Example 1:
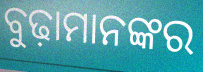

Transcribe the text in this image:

ବୁଢ଼ାମାନଙ୍କର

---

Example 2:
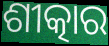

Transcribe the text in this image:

ଶୀତ୍କାର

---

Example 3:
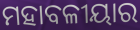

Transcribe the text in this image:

ମହାବଳୀୟାର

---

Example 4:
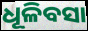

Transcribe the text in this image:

ଧୂଳିବସା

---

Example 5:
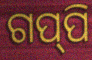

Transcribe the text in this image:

ଗପ୍‌ପି